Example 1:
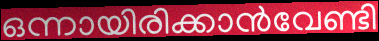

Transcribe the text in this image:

ഒന്നായിരിക്കാൻവേണ്ടി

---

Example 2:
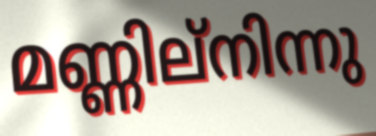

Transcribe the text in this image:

മണ്ണില്നിന്നു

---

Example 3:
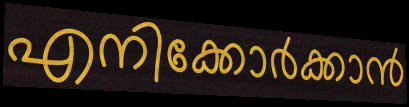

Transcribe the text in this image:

എനിക്കോർക്കാൻ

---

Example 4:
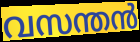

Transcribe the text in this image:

വസന്തൻ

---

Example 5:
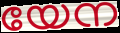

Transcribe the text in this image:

യേന